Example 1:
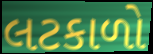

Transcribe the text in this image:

લટકાળો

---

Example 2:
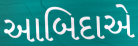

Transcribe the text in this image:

આબિદાએ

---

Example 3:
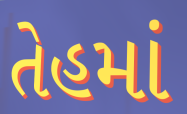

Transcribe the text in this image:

તેહમાં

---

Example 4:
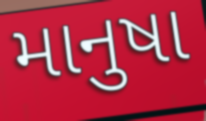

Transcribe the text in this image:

માનુષા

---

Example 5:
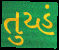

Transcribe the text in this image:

તુય્હં